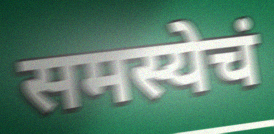
समस्येचं